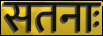
सतनाः